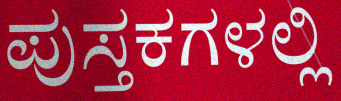
ಪುಸ್ತಕಗಳಲ್ಲಿ